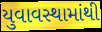
યુવાવસ્થામાંથી